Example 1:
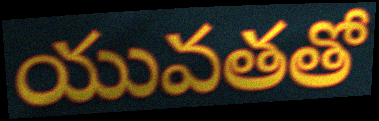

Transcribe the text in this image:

యువతతో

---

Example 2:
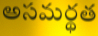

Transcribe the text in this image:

అసమర్థత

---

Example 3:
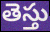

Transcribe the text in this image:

తెస్తు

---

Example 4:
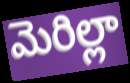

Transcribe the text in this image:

మెరిల్లా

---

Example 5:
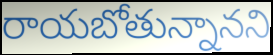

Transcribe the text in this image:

రాయబోతున్నానని